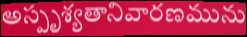
అస్పృశ్యతానివారణమును